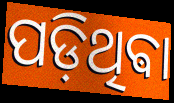
ପଡ଼ିଥିଵା